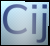
Cij